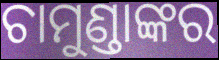
ଚାମୁଣ୍ଡାଙ୍କର